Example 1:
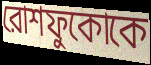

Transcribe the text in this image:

রোশফুকোকে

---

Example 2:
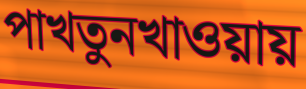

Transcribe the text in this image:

পাখতুনখাওয়ায়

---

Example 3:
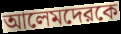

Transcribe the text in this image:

আলেমদেরকে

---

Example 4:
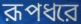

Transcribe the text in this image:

রূপধরে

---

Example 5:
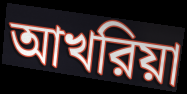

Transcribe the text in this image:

আখরিয়া